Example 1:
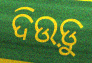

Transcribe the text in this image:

ଦିଉଡ଼ୁ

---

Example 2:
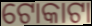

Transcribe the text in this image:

ଟୋକାଟା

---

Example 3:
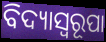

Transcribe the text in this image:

ବିଦ୍ୟାସ୍ୱରୂପା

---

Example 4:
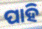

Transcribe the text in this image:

ପାହି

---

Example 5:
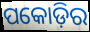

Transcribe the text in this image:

ପକୋଡ଼ିର